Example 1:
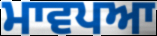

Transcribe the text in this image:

ਮਾਵਪਆ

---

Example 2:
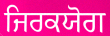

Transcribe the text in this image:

ਜਿਰਕਯੋਗ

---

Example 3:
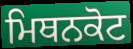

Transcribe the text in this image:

ਮਿਥਨਕੋਟ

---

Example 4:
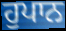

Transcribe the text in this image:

ਹੁਪਾਨ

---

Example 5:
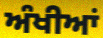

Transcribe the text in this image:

ਅੰਖੀਆਂ